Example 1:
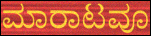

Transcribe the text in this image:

ಮಾರಾಟವೂ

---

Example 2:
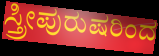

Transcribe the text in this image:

ಸ್ತ್ರೀಪುರುಷರಿಂದ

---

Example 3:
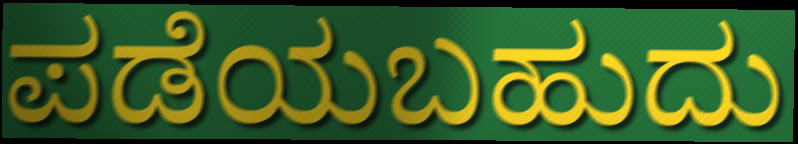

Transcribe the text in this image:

ಪಡೆಯಬಹುದು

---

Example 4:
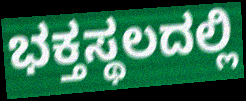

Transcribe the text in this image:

ಭಕ್ತಸ್ಥಲದಲ್ಲಿ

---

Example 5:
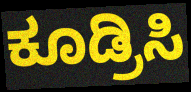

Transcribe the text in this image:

ಕೂಡ್ರಿಸಿ